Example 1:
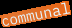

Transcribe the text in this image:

communal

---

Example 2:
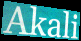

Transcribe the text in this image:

Akali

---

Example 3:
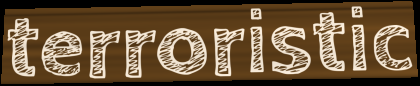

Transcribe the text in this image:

terroristic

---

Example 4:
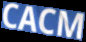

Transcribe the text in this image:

CACM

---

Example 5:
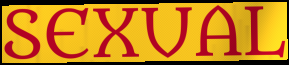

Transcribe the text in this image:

SEXUAL